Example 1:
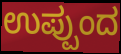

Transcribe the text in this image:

ಉಪ್ಪುಂದ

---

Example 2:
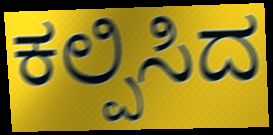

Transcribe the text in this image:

ಕಲ್ಪಿಸಿದ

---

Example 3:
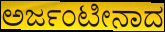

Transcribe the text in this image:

ಅರ್ಜಂಟೀನಾದ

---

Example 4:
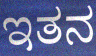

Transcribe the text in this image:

ಇತನ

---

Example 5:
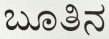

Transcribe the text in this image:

ಬೂತಿನ